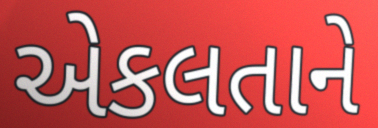
એકલતાને